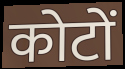
कोटों